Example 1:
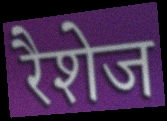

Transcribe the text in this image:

रैशेज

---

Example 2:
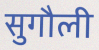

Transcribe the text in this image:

सुगौली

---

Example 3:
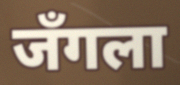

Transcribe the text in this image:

जँगला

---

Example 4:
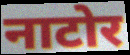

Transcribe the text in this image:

नाटोर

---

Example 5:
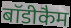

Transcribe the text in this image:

बॉडीकैम